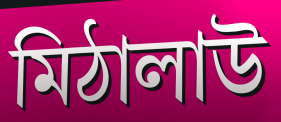
মিঠালাউ